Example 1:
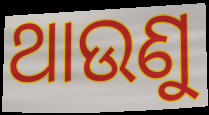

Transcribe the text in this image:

ଥାଉଣୁ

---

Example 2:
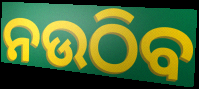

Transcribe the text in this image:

ନଉଠିବ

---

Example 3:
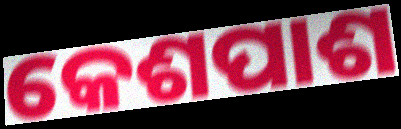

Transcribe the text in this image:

କେଶପାଶ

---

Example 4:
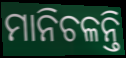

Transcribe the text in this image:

ମାନିଚଳନ୍ତି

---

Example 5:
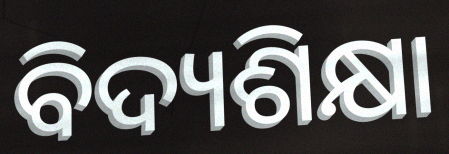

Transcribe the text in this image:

ବିଦ୍ୟଶିକ୍ଷା